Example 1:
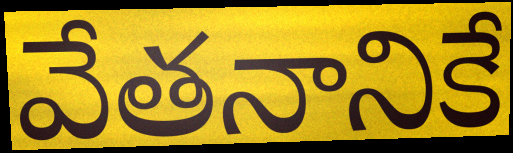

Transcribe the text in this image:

వేతనానికే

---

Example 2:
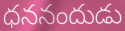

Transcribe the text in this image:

ధననందుడు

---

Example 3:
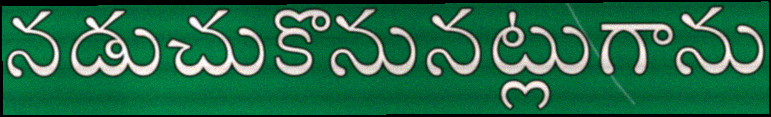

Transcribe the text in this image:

నడుచుకొనునట్లుగాను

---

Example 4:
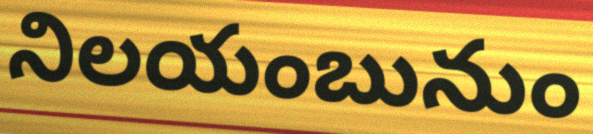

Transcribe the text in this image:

నిలయంబునుం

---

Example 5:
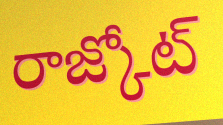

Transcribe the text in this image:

రాజ్కోట్